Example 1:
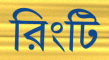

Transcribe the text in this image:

রিংটি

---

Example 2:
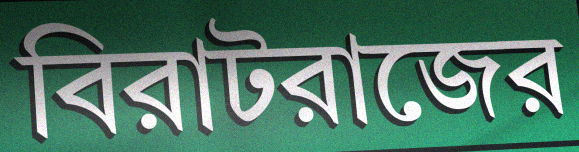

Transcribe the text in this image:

বিরাটরাজের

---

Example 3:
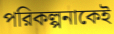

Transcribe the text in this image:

পরিকল্পনাকেই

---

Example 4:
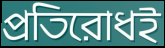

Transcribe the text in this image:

প্রতিরোধই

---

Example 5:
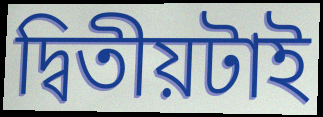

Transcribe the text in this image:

দ্বিতীয়টাই